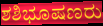
ಶಶಿಭೂಷಣರು